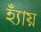
হ্যাঁয়